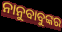
ନାନୁବାବୁଙ୍କର